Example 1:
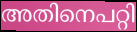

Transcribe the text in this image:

അതിനെപറ്റി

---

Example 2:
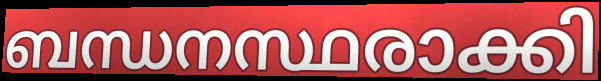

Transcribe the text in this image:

ബന്ധനസ്ഥരാക്കി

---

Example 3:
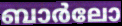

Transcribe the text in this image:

ബാർലോ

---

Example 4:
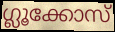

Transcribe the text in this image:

ഗ്ലൂക്കോസ്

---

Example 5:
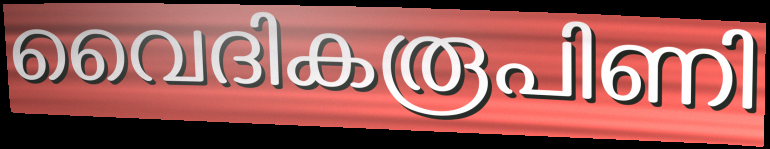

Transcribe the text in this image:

വൈദികരൂപിണി